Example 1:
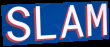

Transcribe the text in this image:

SLAM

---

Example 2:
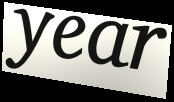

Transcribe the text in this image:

year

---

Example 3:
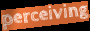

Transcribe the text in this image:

perceiving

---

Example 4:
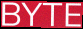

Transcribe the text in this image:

BYTE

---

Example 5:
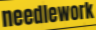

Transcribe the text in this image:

needlework